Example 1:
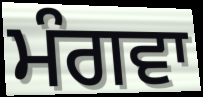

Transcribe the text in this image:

ਮੰਗਵਾ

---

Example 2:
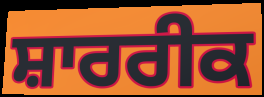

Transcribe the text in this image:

ਸ਼ਾਰਰੀਕ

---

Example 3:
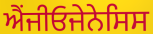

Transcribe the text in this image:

ਐਂਜੀਓਜੇਨੇਸਿਸ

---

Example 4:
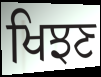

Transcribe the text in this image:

ਖਿਝਣ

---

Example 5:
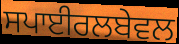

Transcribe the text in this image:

ਸਪਾਈਰਲਬੇਵਲ